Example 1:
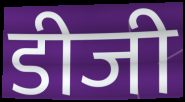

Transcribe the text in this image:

डीजी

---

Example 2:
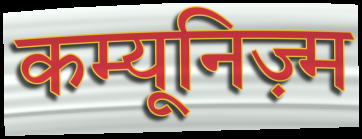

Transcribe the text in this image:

कम्यूनिज़्म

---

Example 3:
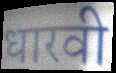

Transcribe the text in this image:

धारवी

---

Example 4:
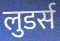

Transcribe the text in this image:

लुडर्स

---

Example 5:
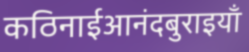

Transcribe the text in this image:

कठिनाईआनंदबुराइयाँ